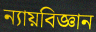
ন্যায়বিজ্ঞান